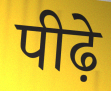
पीढ़े